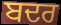
ਬਦਰ